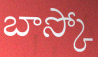
బాస్కో